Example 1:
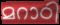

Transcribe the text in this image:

മറാഠി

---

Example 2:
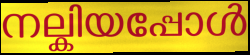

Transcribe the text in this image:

നല്കിയപ്പോൾ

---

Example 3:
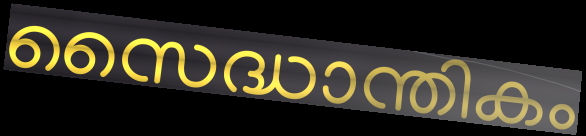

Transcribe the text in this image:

സൈദ്ധാന്തികം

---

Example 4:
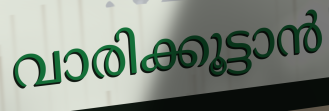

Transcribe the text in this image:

വാരിക്കൂട്ടാൻ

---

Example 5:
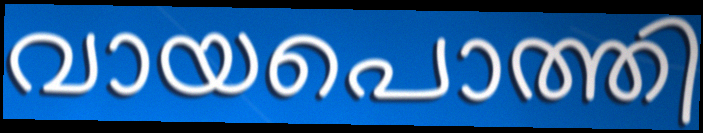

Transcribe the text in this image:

വായപൊത്തി